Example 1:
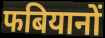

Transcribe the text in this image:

फबियानों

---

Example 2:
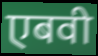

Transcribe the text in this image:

एबवी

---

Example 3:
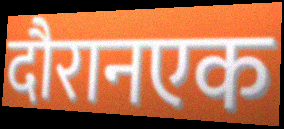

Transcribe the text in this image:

दौरानएक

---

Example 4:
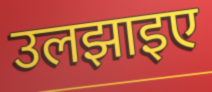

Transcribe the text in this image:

उलझाइए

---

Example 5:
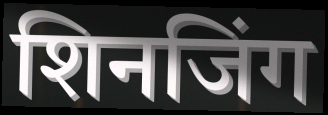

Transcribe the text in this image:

शिनजिंग